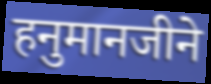
हनुमानजीने